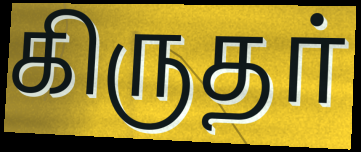
கிருதர்